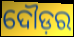
ଦୌଡ଼ର